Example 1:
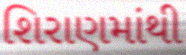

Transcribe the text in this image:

શિરાણમાંથી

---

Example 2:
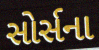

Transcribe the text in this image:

સોર્સના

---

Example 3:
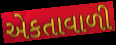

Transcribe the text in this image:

એકતાવાળી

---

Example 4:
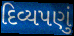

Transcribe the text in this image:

દિવ્યપણું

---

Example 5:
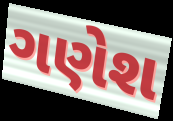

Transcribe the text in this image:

ગણેશ